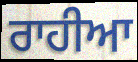
ਰਾਹੀਆ